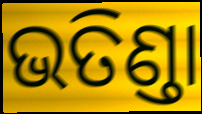
ଭତିଣ୍ଡା